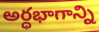
అర్ధభాగాన్ని